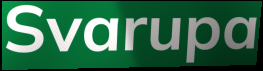
Svarupa